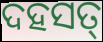
ଦହସତ୍